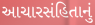
આચારસંહિતાનું